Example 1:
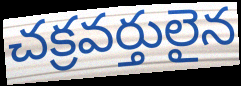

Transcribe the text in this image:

చక్రవర్తులైన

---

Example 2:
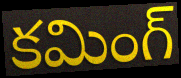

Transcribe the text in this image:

కమింగ్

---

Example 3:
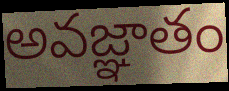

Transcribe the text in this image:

అవజ్ఞాతం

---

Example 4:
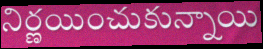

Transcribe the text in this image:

నిర్ణయించుకున్నాయి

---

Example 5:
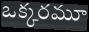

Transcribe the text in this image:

ఒక్కరమూ